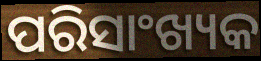
ପରିସାଂଖ୍ୟକ